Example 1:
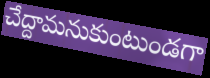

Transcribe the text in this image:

చేద్దామనుకుంటుండగా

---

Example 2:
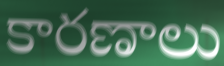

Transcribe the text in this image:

కారణాలు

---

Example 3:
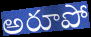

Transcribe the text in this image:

అరూపో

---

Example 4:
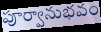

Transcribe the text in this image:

పూర్వానుభవం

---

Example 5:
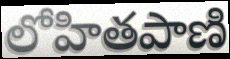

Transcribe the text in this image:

లోహితపాణి